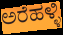
ಅರೆಹಳ್ಳಿ